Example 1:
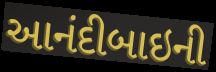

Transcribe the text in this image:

આનંદીબાઇની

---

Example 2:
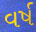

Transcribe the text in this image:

વર્ષ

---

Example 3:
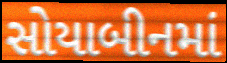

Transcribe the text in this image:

સોયાબીનમાં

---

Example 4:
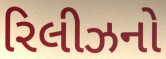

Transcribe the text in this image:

રિલીઝનો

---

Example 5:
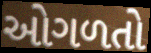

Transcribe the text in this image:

ઓગળતો